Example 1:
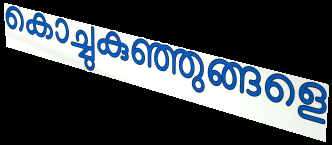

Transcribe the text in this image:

കൊച്ചുകുഞ്ഞുങ്ങളെ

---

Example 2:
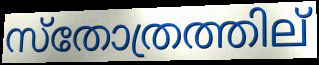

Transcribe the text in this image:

സ്തോത്രത്തില്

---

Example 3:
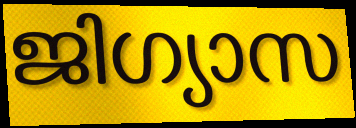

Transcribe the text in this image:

ജിഗ്യാസ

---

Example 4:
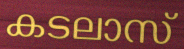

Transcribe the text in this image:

കടലാസ്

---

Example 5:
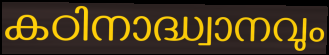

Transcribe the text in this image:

കഠിനാദ്ധ്വാനവും